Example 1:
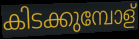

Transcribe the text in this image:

കിടക്കുമ്പോള്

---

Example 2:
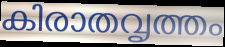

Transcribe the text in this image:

കിരാതവൃത്തം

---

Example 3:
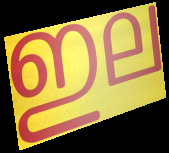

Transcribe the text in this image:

ഇല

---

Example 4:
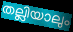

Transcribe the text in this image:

തല്ലിയാലും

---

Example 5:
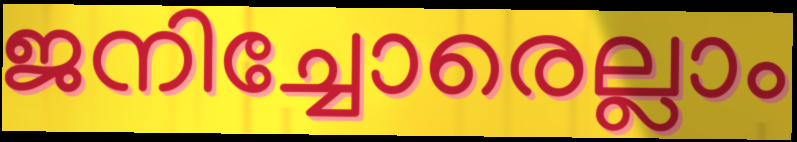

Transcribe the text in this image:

ജനിച്ചോരെല്ലാം